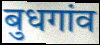
बुधगांव